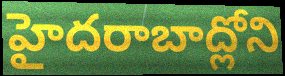
హైదరాబాద్లోని